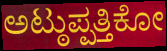
ಅಟ್ಠುಪ್ಪತ್ತಿಕೋ